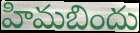
హిమబిందు